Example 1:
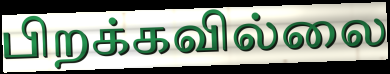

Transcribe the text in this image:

பிறக்கவில்லை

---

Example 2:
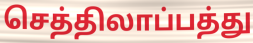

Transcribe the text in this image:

செத்திலாப்பத்து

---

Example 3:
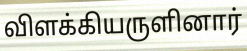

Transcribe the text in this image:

விளக்கியருளினார்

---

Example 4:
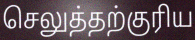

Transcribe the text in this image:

செலுத்தற்குரிய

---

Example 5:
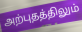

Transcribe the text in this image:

அற்புதத்திலும்